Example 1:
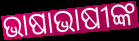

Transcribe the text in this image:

ଭାଷାଭାଷୀଙ୍କ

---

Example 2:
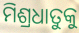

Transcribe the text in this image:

ମିଶ୍ରଧାତୁକୁ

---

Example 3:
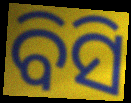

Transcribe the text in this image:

ବିସି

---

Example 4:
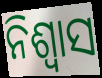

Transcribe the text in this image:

ନିଶ୍ଵାସ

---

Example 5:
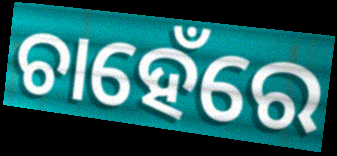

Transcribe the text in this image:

ଚାହେଁରେ